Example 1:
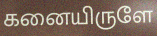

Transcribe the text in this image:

கனையிருளே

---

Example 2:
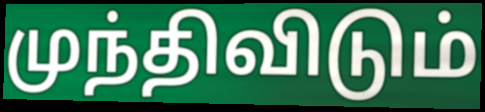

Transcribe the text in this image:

முந்திவிடும்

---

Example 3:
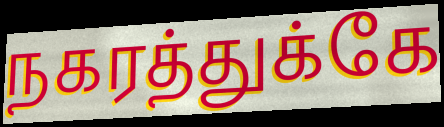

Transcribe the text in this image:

நகரத்துக்கே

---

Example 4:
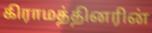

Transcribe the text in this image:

கிராமத்தினரின்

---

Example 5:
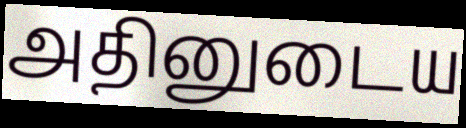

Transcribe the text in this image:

அதினுடைய